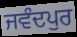
ਜਵੰਦਪੁਰ